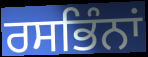
ਰਸਭਿੰਨਾਂ